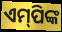
ଏମ୍‌ପିଙ୍କ